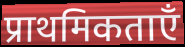
प्राथमिकताएँ